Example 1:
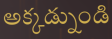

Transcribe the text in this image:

అక్కడ్నుండి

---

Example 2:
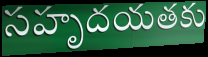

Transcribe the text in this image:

సహృదయతకు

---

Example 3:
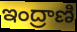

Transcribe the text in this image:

ఇంద్రాణి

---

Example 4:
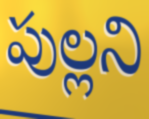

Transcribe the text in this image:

పుల్లని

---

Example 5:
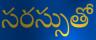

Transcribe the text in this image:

సరస్సుతో